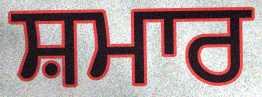
ਸ਼ਮਾਰ